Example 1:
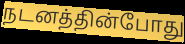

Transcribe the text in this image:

நடனத்தின்போது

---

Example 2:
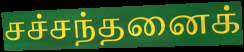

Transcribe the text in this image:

சச்சந்தனைக்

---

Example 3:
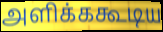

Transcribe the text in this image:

அளிக்ககூடிய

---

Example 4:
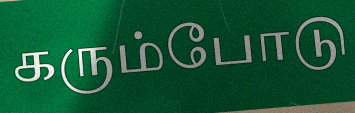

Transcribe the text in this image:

கரும்போடு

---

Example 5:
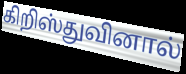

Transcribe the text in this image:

கிறிஸ்துவினால்